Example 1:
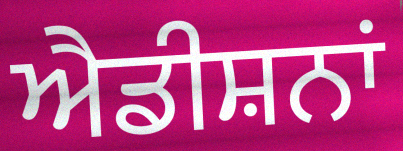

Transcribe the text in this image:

ਐਡੀਸ਼ਨਾਂ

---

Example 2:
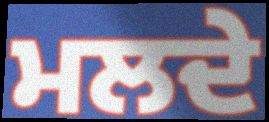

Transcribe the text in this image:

ਮਲਦੇ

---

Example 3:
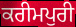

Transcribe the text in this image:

ਕਰੀਮਪੁਰੀ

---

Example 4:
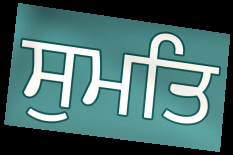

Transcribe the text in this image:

ਸੁਮਤਿ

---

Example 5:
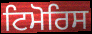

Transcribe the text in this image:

ਟਿਮੋਰਿਸ